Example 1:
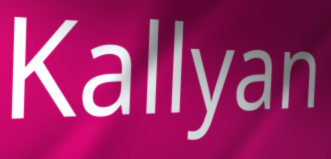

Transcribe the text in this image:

Kallyan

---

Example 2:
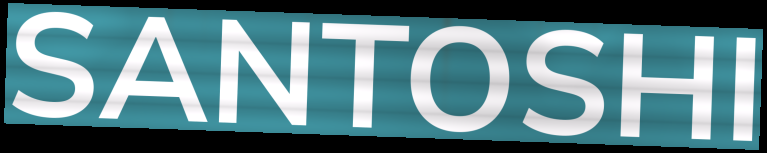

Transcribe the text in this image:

SANTOSHI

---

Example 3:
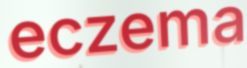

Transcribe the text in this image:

eczema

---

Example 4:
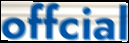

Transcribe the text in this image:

offcial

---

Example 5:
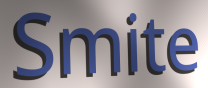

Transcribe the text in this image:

Smite